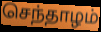
செந்தாழம்